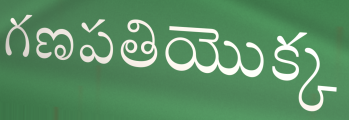
గణపతియొక్క